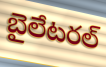
బైలేటరల్